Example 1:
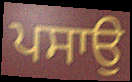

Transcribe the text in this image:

ਪਸਾਉ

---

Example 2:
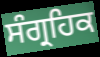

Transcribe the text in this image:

ਸੰਗ੍ਰਹਿਕ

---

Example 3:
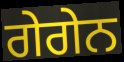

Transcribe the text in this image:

ਗੇਗੇਨ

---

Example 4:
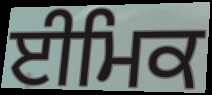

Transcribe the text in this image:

ਈਮਿਕ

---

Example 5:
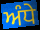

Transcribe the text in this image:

ਅੰਧੇ